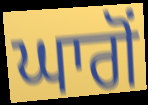
ਘਾਗੋਂ